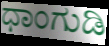
ಧಾಂಗುಡಿ